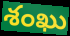
శంఖు